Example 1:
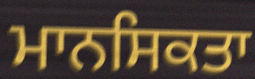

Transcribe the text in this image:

ਮਾਨਸਿਕਤਾ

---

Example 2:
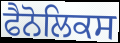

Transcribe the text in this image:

ਫੈਨੋਲਿਕਸ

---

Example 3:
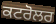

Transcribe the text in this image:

ਕਟਰੋਲਰ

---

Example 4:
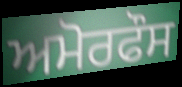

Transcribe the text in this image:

ਅਮੋਰਫੌਸ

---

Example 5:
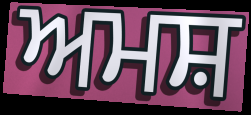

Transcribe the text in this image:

ਅਮਸ਼